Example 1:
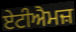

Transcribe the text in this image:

ਏਟੀਐਮਜ਼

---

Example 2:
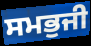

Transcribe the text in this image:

ਸਮਭੁਜੀ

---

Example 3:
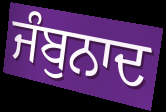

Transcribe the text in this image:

ਜੰਬੁਨਾਦ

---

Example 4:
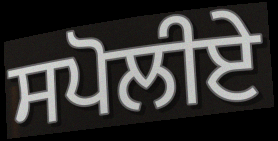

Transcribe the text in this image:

ਸਪੋਲੀਏ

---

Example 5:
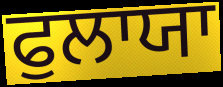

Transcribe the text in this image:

ਫੁਲਾਯਾ